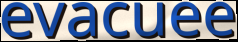
evacuee